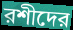
রশীদের